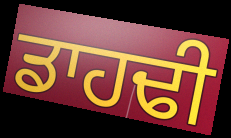
ਡਾਹਢੀ